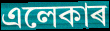
এলেকাৰ